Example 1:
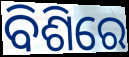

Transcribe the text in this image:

ବିଶିରେ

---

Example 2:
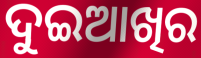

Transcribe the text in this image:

ଦୁଇଆଖିର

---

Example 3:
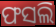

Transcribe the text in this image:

ଫସଲି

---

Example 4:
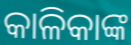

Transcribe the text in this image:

କାଳିକାଙ୍କ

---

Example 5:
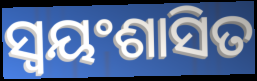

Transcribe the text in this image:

ସ୍ୱୟଂଶାସିତ